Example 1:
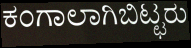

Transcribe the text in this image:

ಕಂಗಾಲಾಗಿಬಿಟ್ಟರು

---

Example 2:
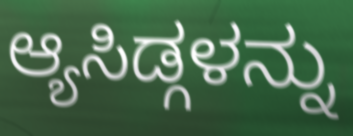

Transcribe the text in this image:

ಆ್ಯಸಿಡ್ಗಳನ್ನು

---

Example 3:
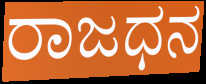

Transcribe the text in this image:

ರಾಜಧನ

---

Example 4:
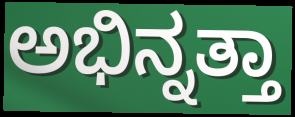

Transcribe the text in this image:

ಅಭಿನ್ನತ್ತಾ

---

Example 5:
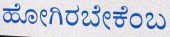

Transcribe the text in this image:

ಹೋಗಿರಬೇಕೆಂಬ